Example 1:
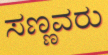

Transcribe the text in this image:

ಸಣ್ಣವರು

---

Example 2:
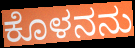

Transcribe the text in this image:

ಕೊಳನನು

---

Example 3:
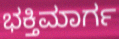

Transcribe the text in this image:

ಭಕ್ತಿಮಾರ್ಗ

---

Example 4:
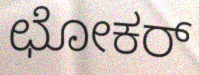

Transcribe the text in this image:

ಛೋಕರ್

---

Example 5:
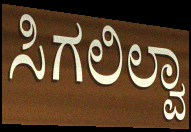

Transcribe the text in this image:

ಸಿಗಲಿಲ್ವಾ